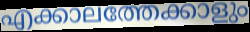
എക്കാലത്തേക്കാളും